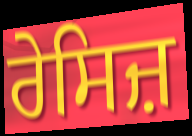
ਰੇਸਿਜ਼